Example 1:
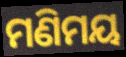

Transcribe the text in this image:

ମଣିମୟ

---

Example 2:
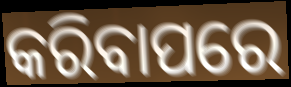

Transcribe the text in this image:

କରିବାପରେ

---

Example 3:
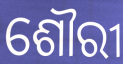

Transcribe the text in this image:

ଶୌରୀ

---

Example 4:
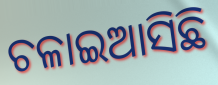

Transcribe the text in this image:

ଚଳାଇଆସିଛି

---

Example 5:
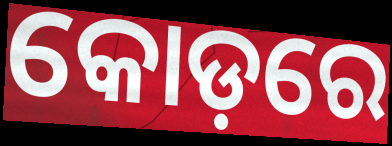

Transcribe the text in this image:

କୋଡ଼ରେ